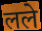
लले